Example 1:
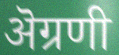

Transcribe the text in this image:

ऄग्रणी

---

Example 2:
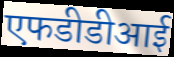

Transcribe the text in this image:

एफडीडीआई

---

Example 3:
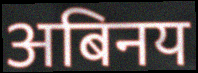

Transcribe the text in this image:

अबिनय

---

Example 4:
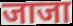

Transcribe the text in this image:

जाजा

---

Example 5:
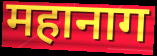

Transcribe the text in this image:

महानाग